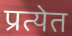
प्रत्येत